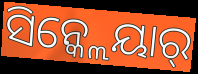
ସିନ୍କ୍ଲେୟାର୍